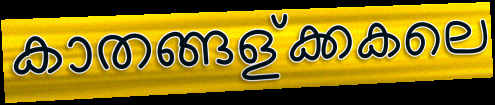
കാതങ്ങള്ക്കകലെ